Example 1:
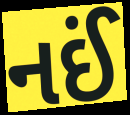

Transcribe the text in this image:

નઈં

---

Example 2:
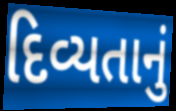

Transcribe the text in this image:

દિવ્યતાનું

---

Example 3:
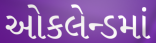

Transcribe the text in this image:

ઓકલેન્ડમાં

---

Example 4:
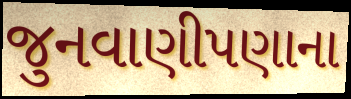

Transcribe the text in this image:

જુનવાણીપણાના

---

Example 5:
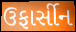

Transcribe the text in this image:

ઉફાર્સીન